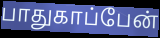
பாதுகாப்பேன்